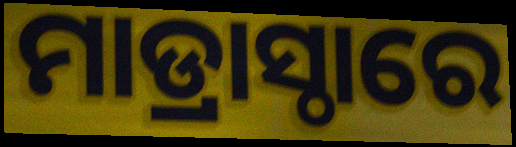
ମାଡ୍ରାସ୍ଠାରେ